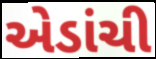
એડાંચી